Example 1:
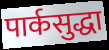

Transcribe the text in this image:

पार्कसुद्धा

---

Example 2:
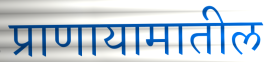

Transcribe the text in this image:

प्राणायामातील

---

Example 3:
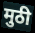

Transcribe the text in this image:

मुठी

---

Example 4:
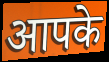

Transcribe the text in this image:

आपके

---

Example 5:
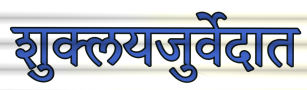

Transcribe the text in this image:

शुक्लयजुर्वेदात